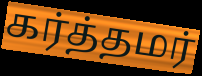
கர்த்தமர்